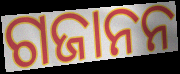
ଗଜାନନ